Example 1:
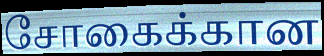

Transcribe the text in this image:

சோகைக்கான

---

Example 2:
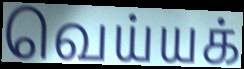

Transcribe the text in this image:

வெய்யக்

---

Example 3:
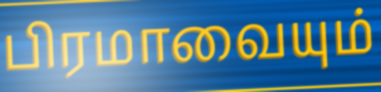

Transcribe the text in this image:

பிரமாவையும்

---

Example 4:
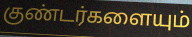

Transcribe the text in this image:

குண்டர்களையும்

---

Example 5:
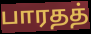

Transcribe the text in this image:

பாரதத்